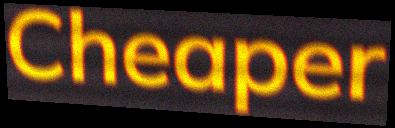
Cheaper